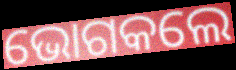
ଭୋଗକଲେ